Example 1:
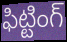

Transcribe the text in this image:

ఫిట్టింగ్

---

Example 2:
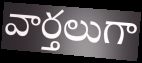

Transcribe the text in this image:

వార్తలుగా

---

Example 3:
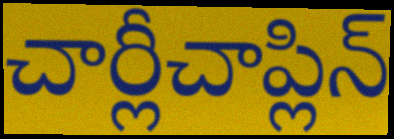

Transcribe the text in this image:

చార్లీచాప్లిన్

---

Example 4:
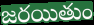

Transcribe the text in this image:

జరయితుం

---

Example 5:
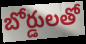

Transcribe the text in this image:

బోర్డులతో